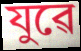
যুৱে